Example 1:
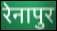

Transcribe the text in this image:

रेनापुर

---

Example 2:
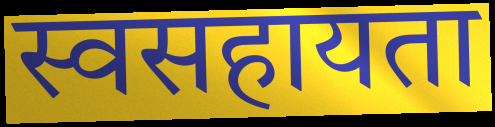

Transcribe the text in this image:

स्‍वसहायता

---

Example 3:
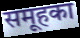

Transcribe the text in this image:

समूहका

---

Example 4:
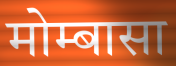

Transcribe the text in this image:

मोम्बासा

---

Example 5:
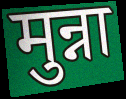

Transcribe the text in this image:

मुन्ना